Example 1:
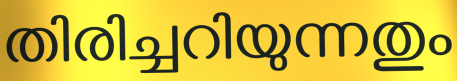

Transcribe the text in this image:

തിരിച്ചറിയുന്നതും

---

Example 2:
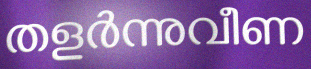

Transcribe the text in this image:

തളർന്നുവീണ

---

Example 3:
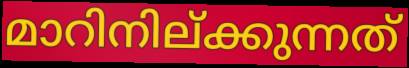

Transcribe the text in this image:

മാറിനില്ക്കുന്നത്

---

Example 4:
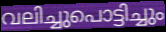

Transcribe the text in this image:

വലിച്ചുപൊട്ടിച്ചും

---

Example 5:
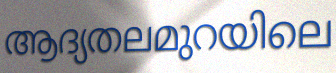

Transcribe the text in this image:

ആദ്യതലമുറയിലെ